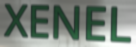
XENEL